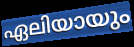
ഏലിയായും